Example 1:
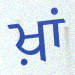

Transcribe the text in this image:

ਖ਼ਾਂ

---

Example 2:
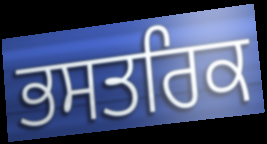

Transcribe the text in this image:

ਭਸਤਰਿਕ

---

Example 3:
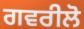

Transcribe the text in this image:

ਗਵਰੀਲੋ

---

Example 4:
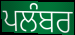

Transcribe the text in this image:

ਪਲੰਬਰ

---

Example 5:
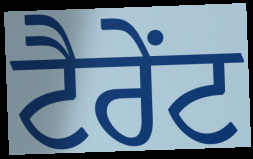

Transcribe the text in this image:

ਟੈਰੇਂਟ